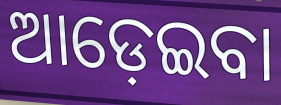
ଆଡ଼େଇବା